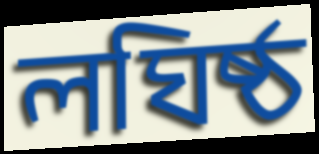
লঘিষ্ঠ